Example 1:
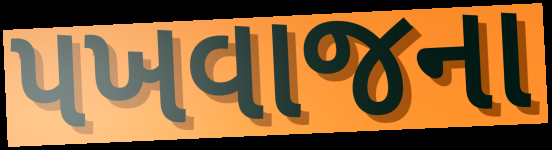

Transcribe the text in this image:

પખવાજના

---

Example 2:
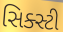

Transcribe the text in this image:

સિક્સ્ટી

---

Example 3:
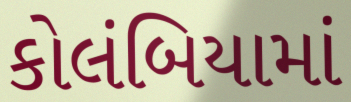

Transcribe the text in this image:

કોલંબિયામાં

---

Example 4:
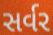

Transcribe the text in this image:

સર્વર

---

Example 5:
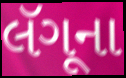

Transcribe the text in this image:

લૅગૂના